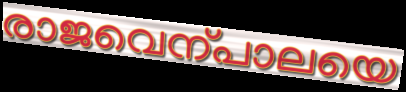
രാജവെന്പാലയെ